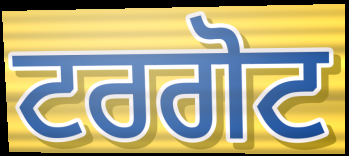
ਟਰਗੋਟ